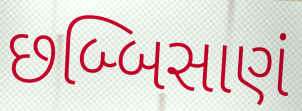
છબ્બિસાણં